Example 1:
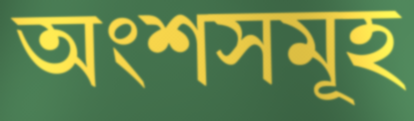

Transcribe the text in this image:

অংশসমূহ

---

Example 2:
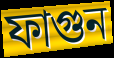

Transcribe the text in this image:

ফাগুন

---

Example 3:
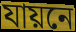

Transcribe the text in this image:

যায়নে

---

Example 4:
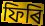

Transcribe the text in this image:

ফিৰি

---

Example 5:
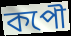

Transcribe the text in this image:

কপৌ